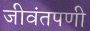
जीवंतपणी